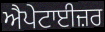
ਐਪੇਟਾਈਜ਼ਰ